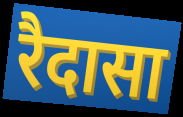
रैदासा